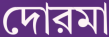
দোরমা